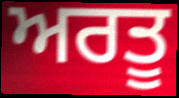
ਅਰਤੂ